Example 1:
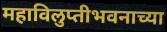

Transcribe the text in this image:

महाविलुप्तीभवनाच्या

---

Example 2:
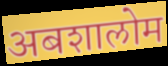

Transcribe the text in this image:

अबशालोम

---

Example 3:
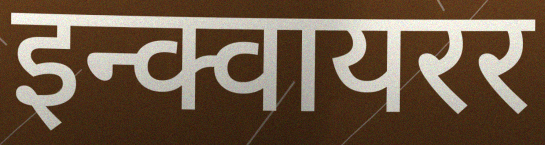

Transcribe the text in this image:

इन्क्वायरर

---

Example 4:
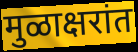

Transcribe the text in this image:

मुळाक्षरांत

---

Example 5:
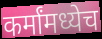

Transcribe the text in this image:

कर्मांमध्येच